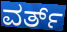
ವರ್ತ್